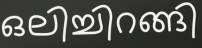
ഒലിച്ചിറങ്ങി